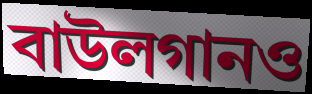
বাউলগানও